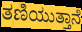
ತಣಿಯುತ್ತಾನೆ